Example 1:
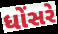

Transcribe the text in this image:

ધોંસરે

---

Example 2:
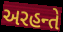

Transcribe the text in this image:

અરહન્તે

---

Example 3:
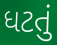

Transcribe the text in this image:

ધટતું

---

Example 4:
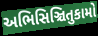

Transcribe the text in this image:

અભિસિઞ્ચિતુકામો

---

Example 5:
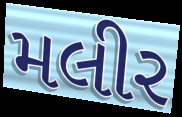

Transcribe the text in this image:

મલીર